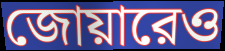
জোয়ারেও